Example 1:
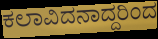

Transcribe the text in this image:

ಕಲಾವಿದನಾದ್ದರಿಂದ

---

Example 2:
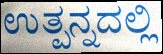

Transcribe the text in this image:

ಉತ್ಪನ್ನದಲ್ಲಿ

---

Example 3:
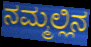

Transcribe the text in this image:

ನಮ್ಮಲ್ಲಿನ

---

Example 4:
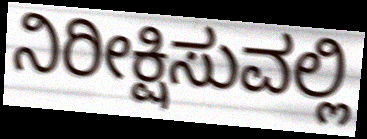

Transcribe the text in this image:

ನಿರೀಕ್ಷಿಸುವಲ್ಲಿ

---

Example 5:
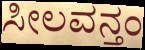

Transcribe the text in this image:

ಸೀಲವನ್ತಂ